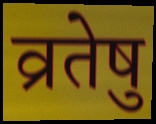
व्रतेषु